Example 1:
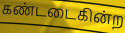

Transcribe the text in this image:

கண்டடைகின்ற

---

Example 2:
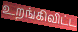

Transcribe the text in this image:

உறங்கிவிட்ட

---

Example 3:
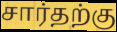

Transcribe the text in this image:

சார்தற்கு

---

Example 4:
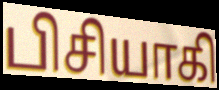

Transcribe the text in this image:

பிசியாகி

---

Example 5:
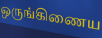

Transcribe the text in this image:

ஒருங்கிணைய